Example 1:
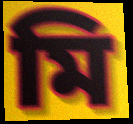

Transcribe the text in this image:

মি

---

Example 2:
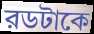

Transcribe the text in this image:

রডটাকে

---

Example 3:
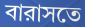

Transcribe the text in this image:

বারাসতে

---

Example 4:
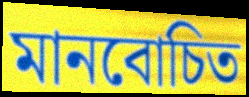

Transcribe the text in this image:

মানবোচিত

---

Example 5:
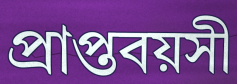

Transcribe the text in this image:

প্রাপ্তবয়সী